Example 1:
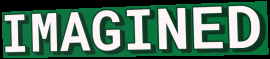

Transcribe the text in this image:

IMAGINED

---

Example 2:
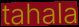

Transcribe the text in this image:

tahala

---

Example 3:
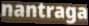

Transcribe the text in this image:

nantraga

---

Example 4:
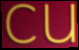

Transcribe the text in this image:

cu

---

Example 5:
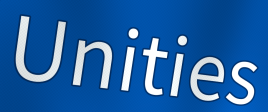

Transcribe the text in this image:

Unities